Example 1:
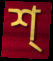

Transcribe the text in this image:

শ্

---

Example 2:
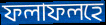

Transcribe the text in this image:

ফলাফলহে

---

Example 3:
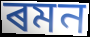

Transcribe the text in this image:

ৰমন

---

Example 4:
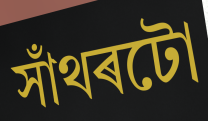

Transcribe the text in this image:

সাঁথৰটো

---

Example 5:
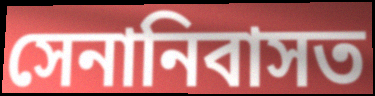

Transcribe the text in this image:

সেনানিবাসত